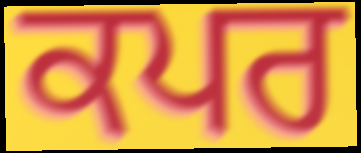
ਕਪਰ